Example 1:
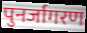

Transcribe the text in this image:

पुनर्जागरण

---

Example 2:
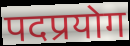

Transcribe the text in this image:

पदप्रयोग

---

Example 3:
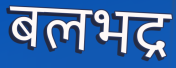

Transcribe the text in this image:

बलभद्र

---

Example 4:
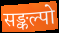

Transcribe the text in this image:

सङ्कल्पो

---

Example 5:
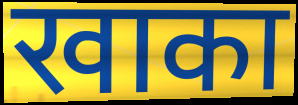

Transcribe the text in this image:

खाका